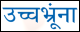
उच्चभ्रूंना